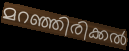
മറഞ്ഞിരിക്കൽ